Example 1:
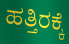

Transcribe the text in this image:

ಹತ್ತಿರಕ್ಕೆ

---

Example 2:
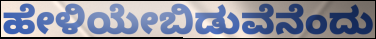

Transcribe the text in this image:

ಹೇಳಿಯೇಬಿಡುವೆನೆಂದು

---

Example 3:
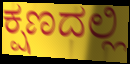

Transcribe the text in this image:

ಕ್ಷಣದಲ್ಲಿ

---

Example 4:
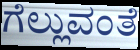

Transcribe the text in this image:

ಗೆಲ್ಲುವಂತೆ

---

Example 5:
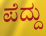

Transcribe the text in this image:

ಪೆದ್ದು